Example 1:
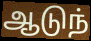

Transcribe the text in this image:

ஆடுந்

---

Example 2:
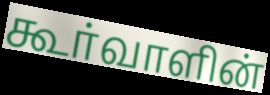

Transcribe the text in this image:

கூர்வாளின்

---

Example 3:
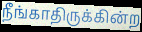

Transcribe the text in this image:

நீங்காதிருக்கின்ற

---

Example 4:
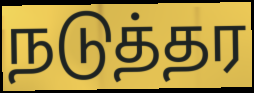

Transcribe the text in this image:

நடுத்தர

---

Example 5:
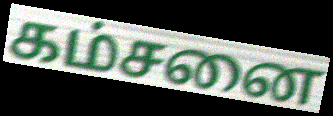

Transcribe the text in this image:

கம்சனை